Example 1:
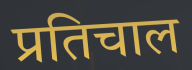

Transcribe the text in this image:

प्रतिचाल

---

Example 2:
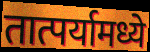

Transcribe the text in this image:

तात्पर्यामध्ये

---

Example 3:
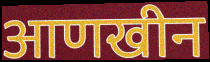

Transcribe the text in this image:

आणखीन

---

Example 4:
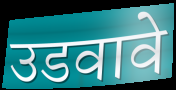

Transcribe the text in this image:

उडवावे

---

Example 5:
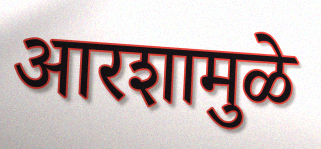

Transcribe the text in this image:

आरशामुळे